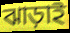
ঝাড়াই